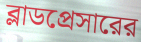
ব্লাডপ্রেসারের